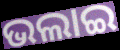
ଭଲାଇ